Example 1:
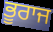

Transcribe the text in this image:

ਭੂਰਾਜ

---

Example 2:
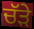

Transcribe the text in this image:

ਚੱੜੇ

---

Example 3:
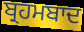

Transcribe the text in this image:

ਬ੍ਰਹਮਬਾਦ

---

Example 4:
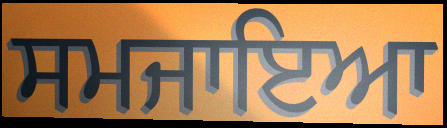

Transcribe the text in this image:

ਸਮਜਾਇਆ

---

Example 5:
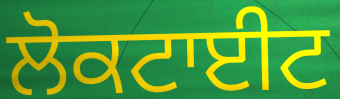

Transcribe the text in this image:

ਲੋਕਟਾਈਟ